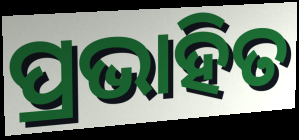
ପ୍ରଭାହିତ